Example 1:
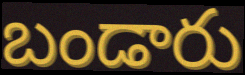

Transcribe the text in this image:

బండారు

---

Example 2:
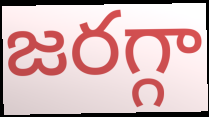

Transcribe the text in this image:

జరగ్గా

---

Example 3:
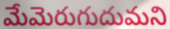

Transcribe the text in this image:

మేమెరుగుదుమని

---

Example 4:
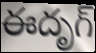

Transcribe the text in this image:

ఈదృగ్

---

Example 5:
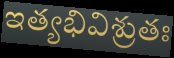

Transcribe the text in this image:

ఇత్యభివిశ్రుతః